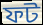
ফট